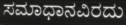
ಸಮಾಧಾನವಿರದು